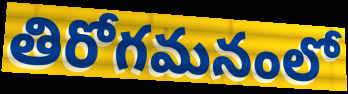
తిరోగమనంలో